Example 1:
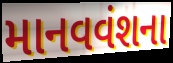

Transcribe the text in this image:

માનવવંશના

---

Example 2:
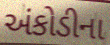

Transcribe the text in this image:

અંકોડીના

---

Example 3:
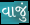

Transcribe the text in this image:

વાજું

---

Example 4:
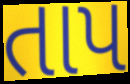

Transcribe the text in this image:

તાપ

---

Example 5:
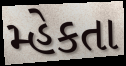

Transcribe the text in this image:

મ્હેકતા